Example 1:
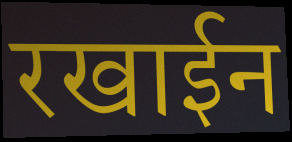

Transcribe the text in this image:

रखाईन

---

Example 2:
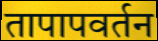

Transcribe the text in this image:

तापापवर्तन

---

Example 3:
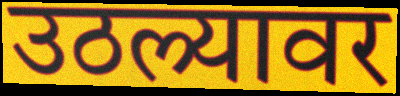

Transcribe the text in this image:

उठल्यावर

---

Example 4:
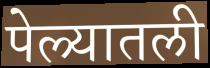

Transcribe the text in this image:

पेल्यातली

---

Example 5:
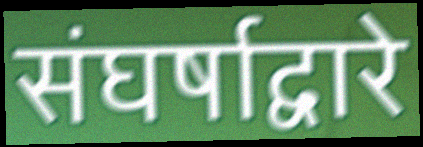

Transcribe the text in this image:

संघर्षाद्वारे